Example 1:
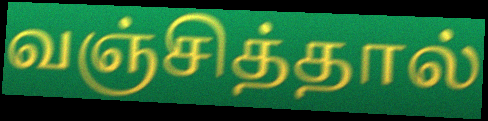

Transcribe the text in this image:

வஞ்சித்தால்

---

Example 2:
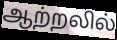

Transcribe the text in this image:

ஆற்றலில்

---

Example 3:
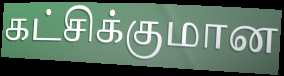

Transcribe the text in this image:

கட்சிக்குமான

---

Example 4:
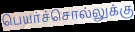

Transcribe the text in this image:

பெயர்ச்சொல்லுக்கு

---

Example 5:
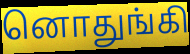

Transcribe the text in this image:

னொதுங்கி